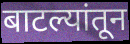
बाटल्यांतून